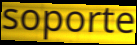
soporte